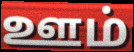
ஊம்